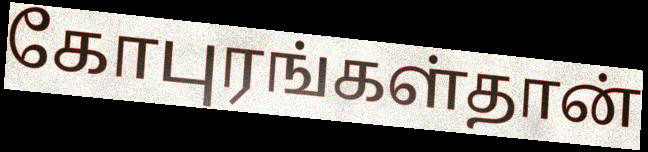
கோபுரங்கள்தான்